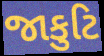
જાકુટિ